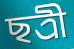
ছত্রী